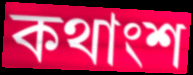
কথাংশ